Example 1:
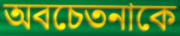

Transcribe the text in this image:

অবচেতনাকে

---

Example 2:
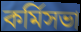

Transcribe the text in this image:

কর্মিসভা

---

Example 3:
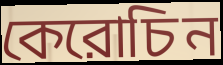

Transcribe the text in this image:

কেরোচিন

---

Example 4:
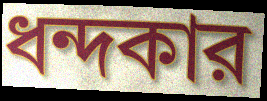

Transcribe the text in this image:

ধন্দকার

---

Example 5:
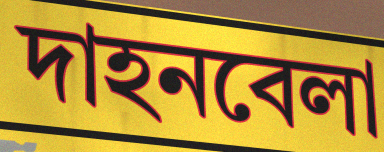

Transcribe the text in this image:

দাহনবেলা